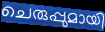
ചെരുപ്പുമായി